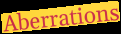
Aberrations